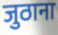
जुठाना